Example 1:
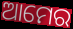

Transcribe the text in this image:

ଆମେର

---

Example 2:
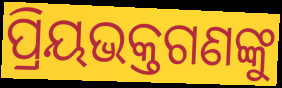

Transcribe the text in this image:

ପ୍ରିୟଭକ୍ତଗଣଙ୍କୁ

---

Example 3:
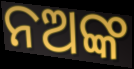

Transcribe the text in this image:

ନଅଙ୍କ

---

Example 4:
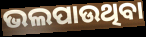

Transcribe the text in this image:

ଭଲପାଉଥିବା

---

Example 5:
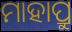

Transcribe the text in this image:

ମାହାପ୍ରୁ